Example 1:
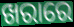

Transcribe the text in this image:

ଖରାରେ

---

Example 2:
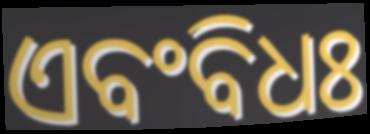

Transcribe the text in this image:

ଏବଂବିଧଃ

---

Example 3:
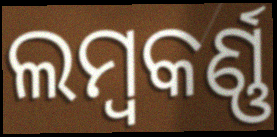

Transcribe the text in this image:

ଲମ୍ୱକର୍ଣ୍ଣ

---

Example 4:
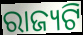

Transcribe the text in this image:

ରାଜ୍ୟଟି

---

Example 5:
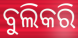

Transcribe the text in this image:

ବୁଲିକରି